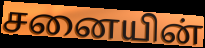
சனையின்